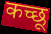
कच्छू